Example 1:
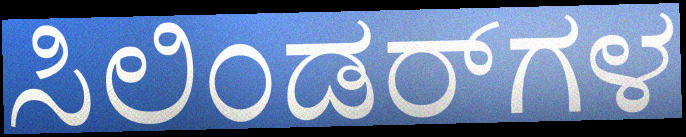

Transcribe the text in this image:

ಸಿಲಿಂಡರ್‌ಗಳ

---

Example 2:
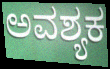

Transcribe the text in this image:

ಅವಶ್ಯಕ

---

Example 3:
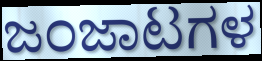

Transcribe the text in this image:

ಜಂಜಾಟಗಳ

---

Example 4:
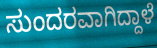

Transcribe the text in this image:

ಸುಂದರವಾಗಿದ್ದಾಳೆ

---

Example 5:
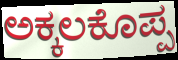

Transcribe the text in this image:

ಅಕ್ಕಲಕೊಪ್ಪ